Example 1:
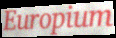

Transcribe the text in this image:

Europium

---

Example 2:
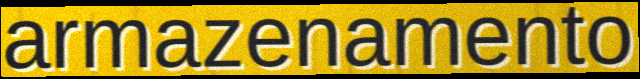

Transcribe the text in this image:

armazenamento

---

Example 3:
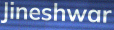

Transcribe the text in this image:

Jineshwar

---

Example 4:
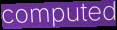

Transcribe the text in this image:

computed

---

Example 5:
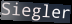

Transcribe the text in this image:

Siegler